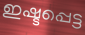
ഇഷ്ടപ്പെട്ട